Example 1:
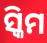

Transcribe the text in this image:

ସ୍କିମ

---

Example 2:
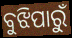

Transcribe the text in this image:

ବୁଝିପାରୁଁ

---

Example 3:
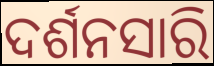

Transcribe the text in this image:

ଦର୍ଶନସାରି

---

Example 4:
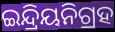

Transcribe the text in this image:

ଇନ୍ଦ୍ରିୟନିଗ୍ରହ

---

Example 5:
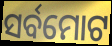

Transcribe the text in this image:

ସର୍ବମୋଟ